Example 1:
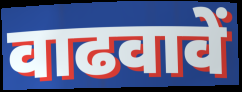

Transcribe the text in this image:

वाढवावें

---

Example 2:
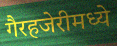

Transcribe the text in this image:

गैरहजेरीमध्ये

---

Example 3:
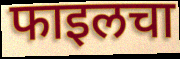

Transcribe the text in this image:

फाइलचा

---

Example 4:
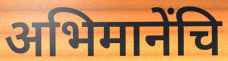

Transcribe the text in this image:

अभिमानेंचि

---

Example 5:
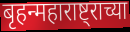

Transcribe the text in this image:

बृहन्महाराष्ट्राच्या